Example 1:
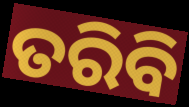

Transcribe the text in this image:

ତରିବି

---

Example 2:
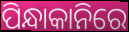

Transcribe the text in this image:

ପିନ୍ଧାକାନିରେ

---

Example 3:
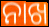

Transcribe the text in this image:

ନାଖ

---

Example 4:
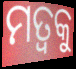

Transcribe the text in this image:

ମତ୍ୱକୁ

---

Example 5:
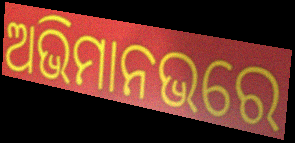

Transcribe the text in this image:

ଅଭିମାନଭରେ